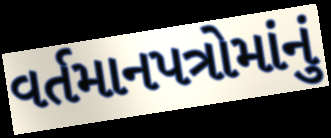
વર્તમાનપત્રોમાંનું